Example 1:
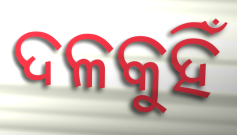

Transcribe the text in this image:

ଦଳକୁହିଁ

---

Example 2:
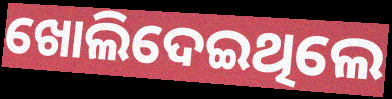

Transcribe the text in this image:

ଖୋଲିଦେଇଥିଲେ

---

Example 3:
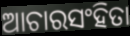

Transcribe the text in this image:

ଆଚାରସଂହିତା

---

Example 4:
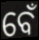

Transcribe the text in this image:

ବେଁ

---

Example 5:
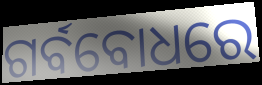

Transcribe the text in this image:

ଗର୍ବବୋଧରେ